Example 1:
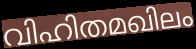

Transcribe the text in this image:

വിഹിതമഖിലം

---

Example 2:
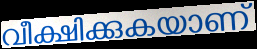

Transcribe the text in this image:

വീക്ഷിക്കുകയാണ്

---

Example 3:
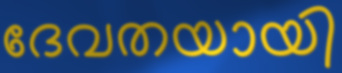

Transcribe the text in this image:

ദേവതയായി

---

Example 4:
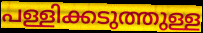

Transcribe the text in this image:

പള്ളിക്കടുത്തുള്ള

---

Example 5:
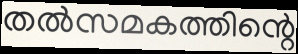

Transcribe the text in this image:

തൽസമകത്തിന്റെ